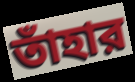
তাঁহার